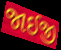
જાઈજી